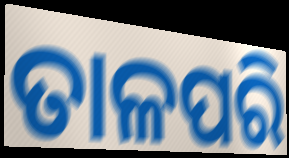
ତାଳପରି